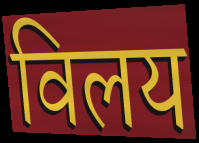
विलय